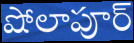
షోలాపూర్